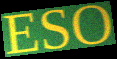
ESO